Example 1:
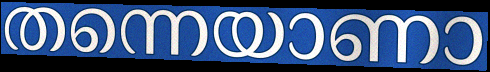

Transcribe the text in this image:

തന്നെയാണാ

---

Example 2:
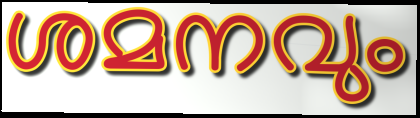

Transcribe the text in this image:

ശമനവും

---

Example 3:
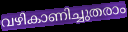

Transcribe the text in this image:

വഴികാണിച്ചുതരാം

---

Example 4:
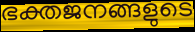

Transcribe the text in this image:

ഭക്തജനങ്ങളുടെ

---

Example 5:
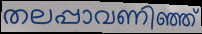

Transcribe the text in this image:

തലപ്പാവണിഞ്ഞ്